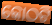
କୋଠଟି